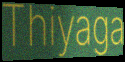
Thiyaga